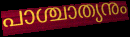
പാശ്ചാത്യനും